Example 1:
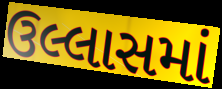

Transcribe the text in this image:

ઉલ્લાસમાં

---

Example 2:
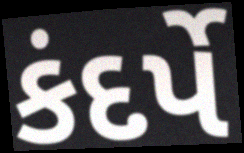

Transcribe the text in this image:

કંદર્પે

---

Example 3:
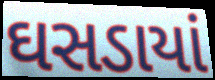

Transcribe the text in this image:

ઘસડાયાં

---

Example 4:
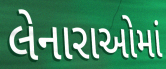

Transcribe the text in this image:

લેનારાઓમાં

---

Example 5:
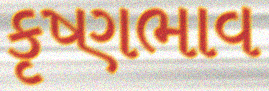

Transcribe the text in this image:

કૃષ્ણભાવ